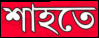
শাহতে